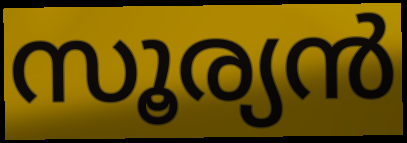
സൂര്യൻ